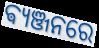
ଵ୍ୟଞ୍ଜନରେ